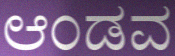
ಆಂಡವ